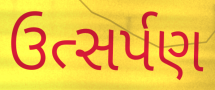
ઉત્સર્પણ